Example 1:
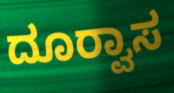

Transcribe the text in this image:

ದೂರ‍್ವಾಸ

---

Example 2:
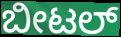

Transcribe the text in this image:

ಬೀಟಲ್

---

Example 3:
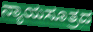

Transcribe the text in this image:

ನ್ಯಾಯಸೂತ್ರದ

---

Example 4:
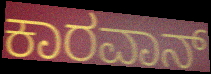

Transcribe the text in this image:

ಕಾರವಾನ್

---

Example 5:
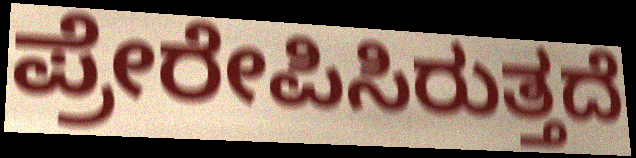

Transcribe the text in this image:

ಪ್ರೇರೇಪಿಸಿರುತ್ತದೆ